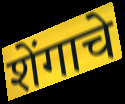
शेंगाचे